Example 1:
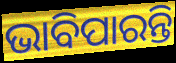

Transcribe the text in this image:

ଭାବିପାରନ୍ତି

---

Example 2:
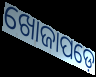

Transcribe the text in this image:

ଖୋଜାପଡ଼େ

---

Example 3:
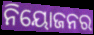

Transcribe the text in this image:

ନିୟୋଜନର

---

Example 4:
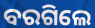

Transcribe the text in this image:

ବରଗିଲେ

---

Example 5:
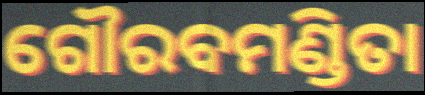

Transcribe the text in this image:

ଗୌରବମଣ୍ଡିତା